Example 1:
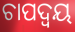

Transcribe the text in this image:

ଚାପଦ୍ଵୟ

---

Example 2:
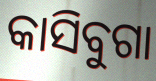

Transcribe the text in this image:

କାସିବୁଗା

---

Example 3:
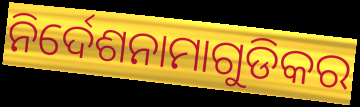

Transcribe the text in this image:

ନିର୍ଦେଶନାମାଗୁଡିକର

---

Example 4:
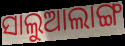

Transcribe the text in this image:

ସାଲୁଆଲାଙ୍ଗ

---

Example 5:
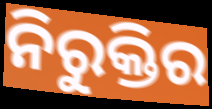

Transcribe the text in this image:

ନିରୁକ୍ତିର